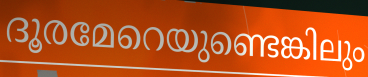
ദൂരമേറെയുണ്ടെങ്കിലും